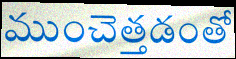
ముంచెత్తడంతో